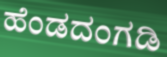
ಹೆಂಡದಂಗಡಿ